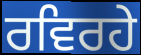
ਰਵਿਰਹੇ